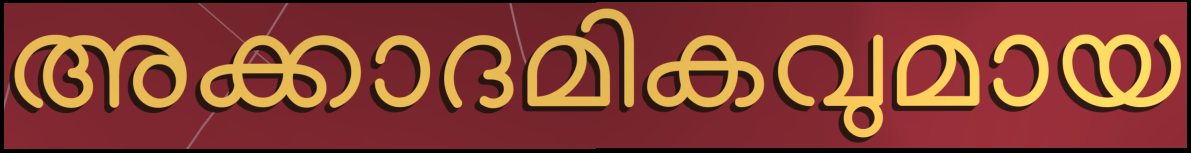
അക്കാദമികവുമായ